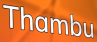
Thambu